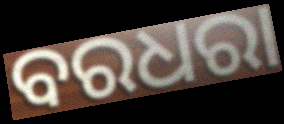
ବରଧରା